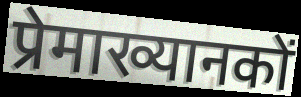
प्रेमाख्यानकों